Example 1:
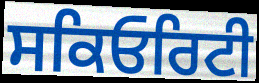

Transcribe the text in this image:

ਸਕਿਓਰਿਟੀ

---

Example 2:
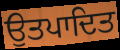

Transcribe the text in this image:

ਉਤਪਾਦਿਤ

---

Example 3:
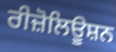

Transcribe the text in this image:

ਰੀਜ਼ੋਲਿਊਸ਼ਨ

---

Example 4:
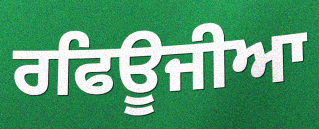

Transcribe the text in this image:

ਰਫਿਊਜੀਆ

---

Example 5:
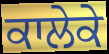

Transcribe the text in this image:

ਕਾਲੇਕੇ